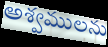
అశ్వములను